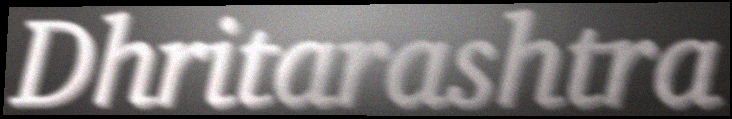
Dhritarashtra